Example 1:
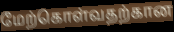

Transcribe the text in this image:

மேற்கொள்வதற்கான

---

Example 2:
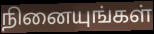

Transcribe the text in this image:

நினையுங்கள்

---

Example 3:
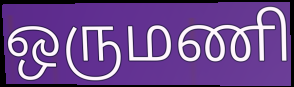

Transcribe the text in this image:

ஒருமணி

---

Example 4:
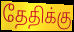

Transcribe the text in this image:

தேதிக்கு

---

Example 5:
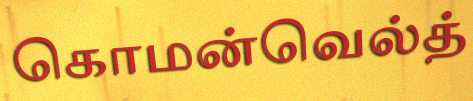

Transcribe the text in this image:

கொமன்வெல்த்